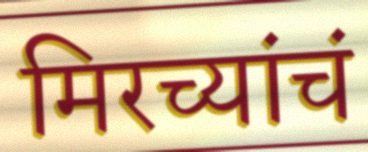
मिरच्यांचं